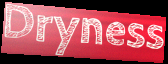
Dryness